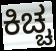
ಕಿಚ್ಚ